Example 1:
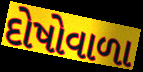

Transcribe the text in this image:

દોષોવાળા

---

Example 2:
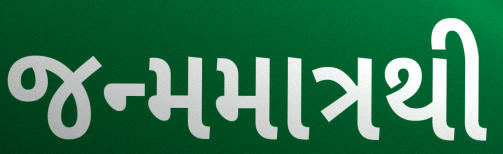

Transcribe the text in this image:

જન્મમાત્રથી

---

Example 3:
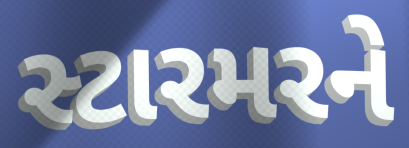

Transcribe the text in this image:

સ્ટારમરને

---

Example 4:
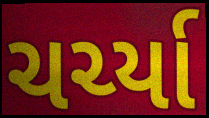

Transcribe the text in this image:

ચર્ચ્યા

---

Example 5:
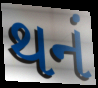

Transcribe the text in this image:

થનં